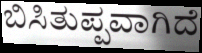
ಬಿಸಿತುಪ್ಪವಾಗಿದೆ